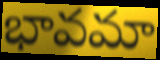
భావమా